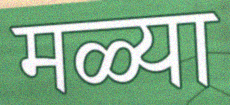
मळ्या